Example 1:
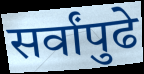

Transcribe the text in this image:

सर्वांपुढे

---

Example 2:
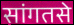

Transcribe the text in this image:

सांगतसे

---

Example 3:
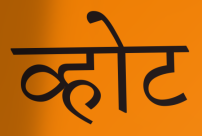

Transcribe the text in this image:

व्होट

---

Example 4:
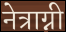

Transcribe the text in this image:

नेत्राग्नी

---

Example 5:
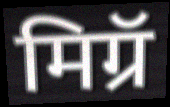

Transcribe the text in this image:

मिग्रॅ